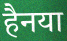
हैनया